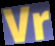
Vr